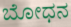
ಬೋಧನ